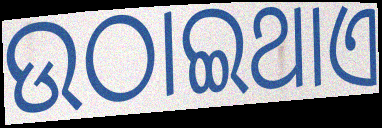
ଉଠାଇଥାଏ